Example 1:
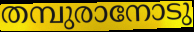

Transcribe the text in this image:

തമ്പുരാനോടു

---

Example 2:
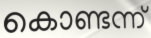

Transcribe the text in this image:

കൊണ്ടന്ന്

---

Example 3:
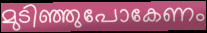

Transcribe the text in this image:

മുടിഞ്ഞുപോകേണം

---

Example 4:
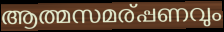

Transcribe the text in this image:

ആത്മസമര്പ്പണവും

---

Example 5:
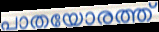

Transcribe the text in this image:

പാതയോരത്ത്